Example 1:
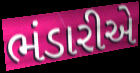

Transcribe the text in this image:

ભંડારીએ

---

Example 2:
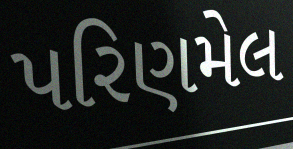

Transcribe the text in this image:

પરિણમેલ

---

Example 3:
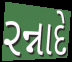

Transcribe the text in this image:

રન્નાદે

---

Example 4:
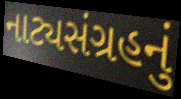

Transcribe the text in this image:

નાટ્યસંગ્રહનું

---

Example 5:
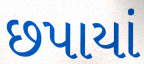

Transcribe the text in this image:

છપાયાં